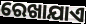
ରେଖାଯାଏ